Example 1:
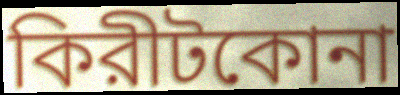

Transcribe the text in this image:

কিরীটকোনা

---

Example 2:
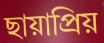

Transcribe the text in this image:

ছায়াপ্রিয়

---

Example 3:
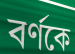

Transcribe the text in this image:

বর্ণকে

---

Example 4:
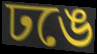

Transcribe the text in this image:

ঢঙে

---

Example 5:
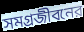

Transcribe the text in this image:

সমগ্রজীবনের